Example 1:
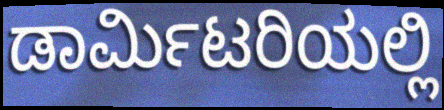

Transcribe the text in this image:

ಡಾರ್ಮಿಟರಿಯಲ್ಲಿ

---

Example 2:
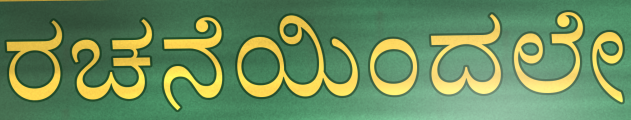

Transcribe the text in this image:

ರಚನೆಯಿಂದಲೇ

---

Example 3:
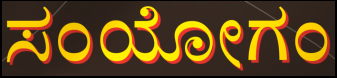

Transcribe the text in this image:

ಸಂಯೋಗಂ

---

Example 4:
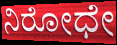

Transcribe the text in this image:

ನಿರೋಧೇ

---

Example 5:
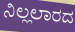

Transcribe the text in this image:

ನಿಲ್ಲಲಾರದ